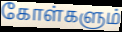
கோள்களும்